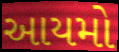
આયમો